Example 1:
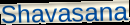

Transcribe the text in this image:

Shavasana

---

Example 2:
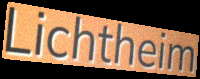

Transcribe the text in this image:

Lichtheim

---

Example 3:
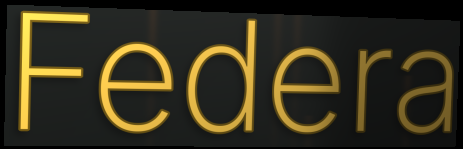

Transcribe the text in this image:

Federa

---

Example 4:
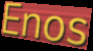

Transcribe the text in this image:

Enos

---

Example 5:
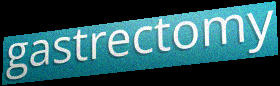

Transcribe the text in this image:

gastrectomy